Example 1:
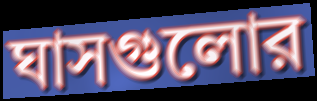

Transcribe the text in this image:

ঘাসগুলোর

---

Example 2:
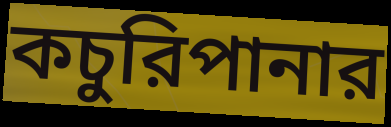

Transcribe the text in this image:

কচুরিপানার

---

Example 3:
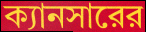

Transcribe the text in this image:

ক্যানসারের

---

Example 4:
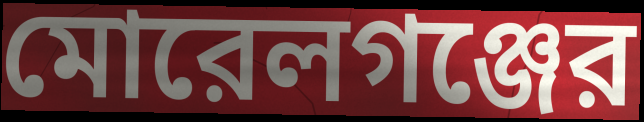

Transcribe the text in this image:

মোরেলগঞ্জের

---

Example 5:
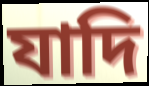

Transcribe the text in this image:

যাদি